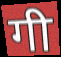
गी